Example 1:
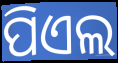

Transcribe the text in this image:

ପିଏଲ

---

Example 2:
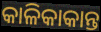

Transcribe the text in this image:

କାଳିକାକାନ୍ତ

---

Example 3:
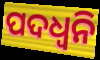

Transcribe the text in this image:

ପଦଧ୍ୱନି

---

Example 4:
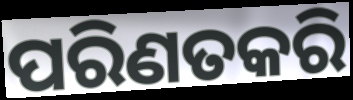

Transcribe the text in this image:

ପରିଣତକରି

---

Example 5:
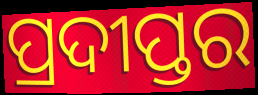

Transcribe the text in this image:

ପ୍ରଦୀପ୍ତର